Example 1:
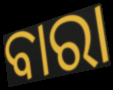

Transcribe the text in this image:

ବାରା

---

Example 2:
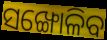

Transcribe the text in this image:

ସଙ୍ଖୋଳିବ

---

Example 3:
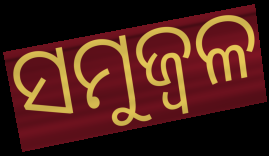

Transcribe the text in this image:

ସମୁଜ୍ୱଳ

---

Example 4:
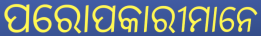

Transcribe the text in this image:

ପରୋପକାରୀମାନେ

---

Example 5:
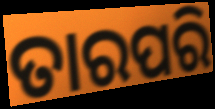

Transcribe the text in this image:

ତାରପରି